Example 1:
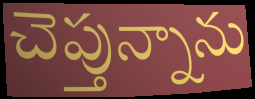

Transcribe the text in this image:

చెప్తున్నాను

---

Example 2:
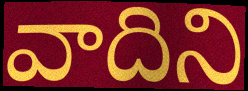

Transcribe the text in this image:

వాదిని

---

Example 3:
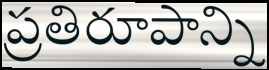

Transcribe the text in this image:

ప్రతిరూపాన్ని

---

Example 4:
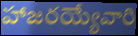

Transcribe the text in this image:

హాజరయ్యేవారి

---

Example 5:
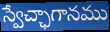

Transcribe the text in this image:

స్వేచ్ఛాగానము